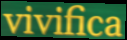
vivifica